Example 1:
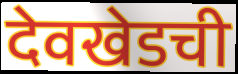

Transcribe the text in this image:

देवखेडची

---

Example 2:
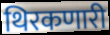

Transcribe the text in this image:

थिरकणारी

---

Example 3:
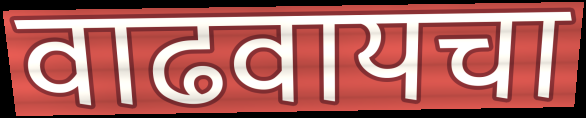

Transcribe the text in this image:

वाढवायचा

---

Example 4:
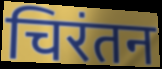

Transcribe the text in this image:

चिरंतन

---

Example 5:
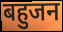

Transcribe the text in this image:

बहुजन